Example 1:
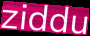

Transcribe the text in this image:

ziddu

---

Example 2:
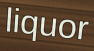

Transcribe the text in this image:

liquor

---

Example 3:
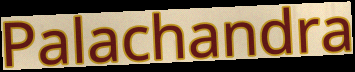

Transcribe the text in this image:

Palachandra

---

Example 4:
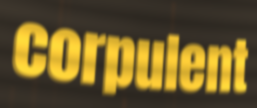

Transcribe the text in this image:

corpulent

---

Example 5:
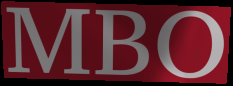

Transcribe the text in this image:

MBO